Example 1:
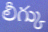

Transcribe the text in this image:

లీగ్కు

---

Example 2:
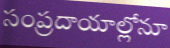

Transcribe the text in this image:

సంప్రదాయాల్లోనూ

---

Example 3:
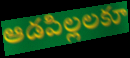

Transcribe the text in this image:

ఆడపిల్లలకూ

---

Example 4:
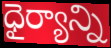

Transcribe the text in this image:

ధైర్యాన్ని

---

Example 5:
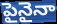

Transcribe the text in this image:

పైనైనా